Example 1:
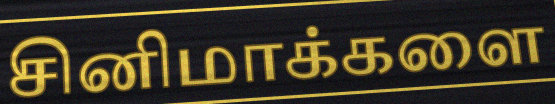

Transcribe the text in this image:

சினிமாக்களை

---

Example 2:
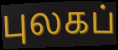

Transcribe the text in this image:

புலகப்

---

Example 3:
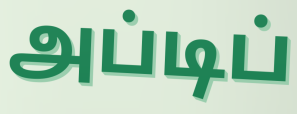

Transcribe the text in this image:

அப்டிப்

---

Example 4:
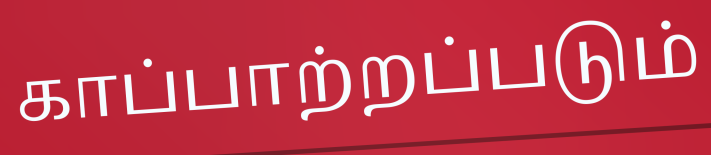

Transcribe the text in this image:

காப்பாற்றப்படும்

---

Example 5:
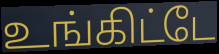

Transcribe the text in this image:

உங்கிட்டே